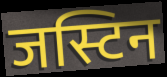
जस्टिन